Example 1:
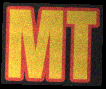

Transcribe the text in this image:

MT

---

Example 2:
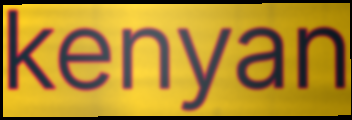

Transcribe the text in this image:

kenyan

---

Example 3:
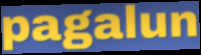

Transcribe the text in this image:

pagalun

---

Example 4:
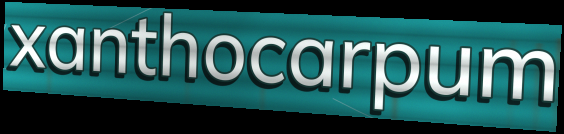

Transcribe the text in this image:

xanthocarpum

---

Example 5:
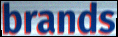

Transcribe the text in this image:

brands